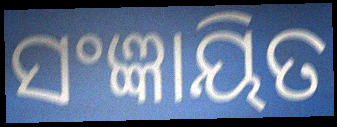
ସଂଜ୍ଞାୟିତ